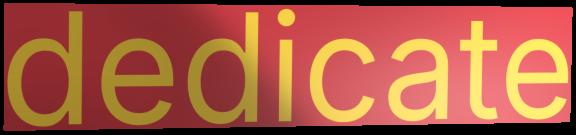
dedicate